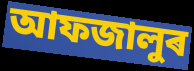
আফজালুৰ